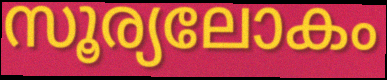
സൂര്യലോകം